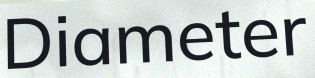
Diameter